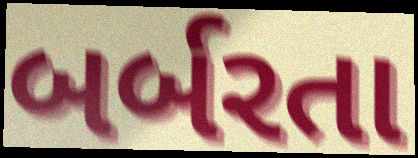
બર્બરતા